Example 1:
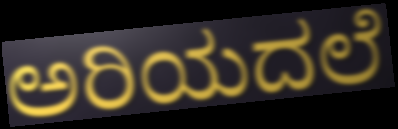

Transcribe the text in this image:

ಅರಿಯದಲೆ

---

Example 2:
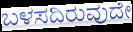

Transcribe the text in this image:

ಬಳಸದಿರುವುದೇ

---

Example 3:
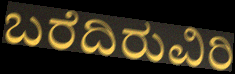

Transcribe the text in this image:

ಬರೆದಿರುವಿರಿ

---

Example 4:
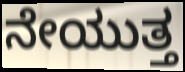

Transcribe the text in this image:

ನೇಯುತ್ತ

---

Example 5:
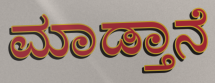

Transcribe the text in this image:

ಮಾಡ್ತಾನೆ